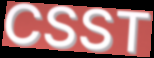
CSST